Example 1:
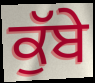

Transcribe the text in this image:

ਕੁੱਬੇ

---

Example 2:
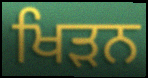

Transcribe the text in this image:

ਖਿੜਨ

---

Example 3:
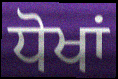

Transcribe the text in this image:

ਧੋਖਾਂ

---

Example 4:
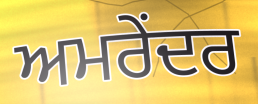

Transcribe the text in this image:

ਅਮਰੇਂਦਰ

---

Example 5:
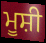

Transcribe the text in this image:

ਮੂਸ਼ੀ